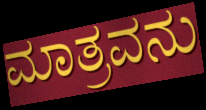
ಮಾತ್ರವನು